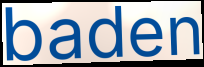
baden